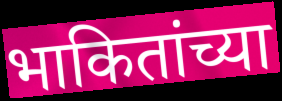
भाकितांच्या